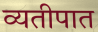
व्यतीपात